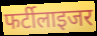
फर्टीलाइजर